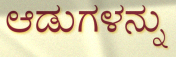
ಆಡುಗಳನ್ನು